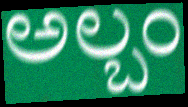
ಅಲ್ಬಂ